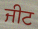
ਜੀਟ